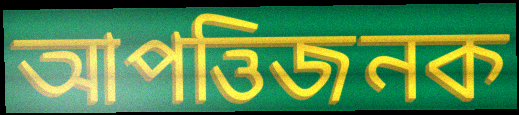
আপত্তিজনক